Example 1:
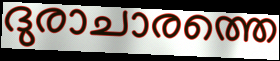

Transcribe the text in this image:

ദുരാചാരത്തെ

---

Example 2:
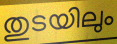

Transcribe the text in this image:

തുടയിലും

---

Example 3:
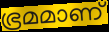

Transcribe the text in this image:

ഭ്രമമാണ്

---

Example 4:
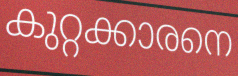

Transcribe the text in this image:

കുറ്റക്കാരനെ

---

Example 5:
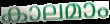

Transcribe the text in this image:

കാലമാം